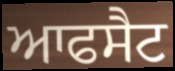
ਆਫਸੈਟ